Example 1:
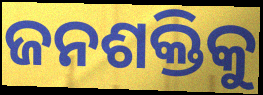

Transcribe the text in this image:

ଜନଶକ୍ତିକୁ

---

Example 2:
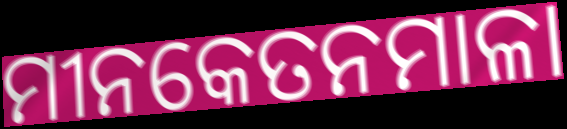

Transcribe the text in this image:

ମୀନକେତନମାଳା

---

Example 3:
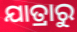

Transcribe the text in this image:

ଯାତ୍ରାରୁ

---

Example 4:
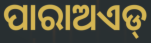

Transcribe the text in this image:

ପାରାଅଏଡ୍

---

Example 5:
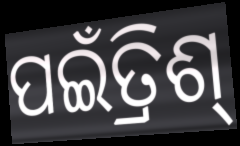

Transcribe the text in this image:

ପଇଁତ୍ରିଶ୍